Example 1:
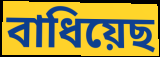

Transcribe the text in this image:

বাধিয়েছ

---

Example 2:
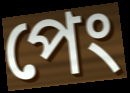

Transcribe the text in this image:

পেং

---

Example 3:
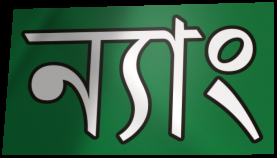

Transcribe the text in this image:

ন্যাং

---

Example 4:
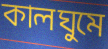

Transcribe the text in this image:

কালঘুমে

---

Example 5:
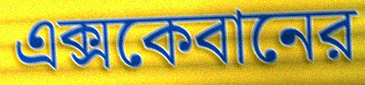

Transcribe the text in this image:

এক্সকেবানের